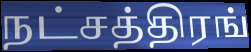
நட்சத்திரங்